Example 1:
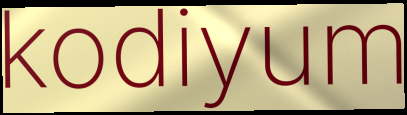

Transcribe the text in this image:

kodiyum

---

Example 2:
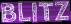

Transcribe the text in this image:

BLITZ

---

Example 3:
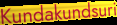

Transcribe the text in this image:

Kundakundsuri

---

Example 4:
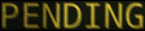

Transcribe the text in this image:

PENDING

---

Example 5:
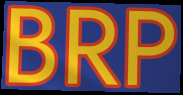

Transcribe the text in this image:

BRP